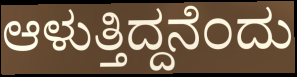
ಆಳುತ್ತಿದ್ದನೆಂದು